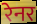
रेनर